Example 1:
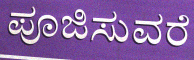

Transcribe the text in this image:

ಪೂಜಿಸುವರೆ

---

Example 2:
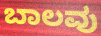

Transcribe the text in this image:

ಬಾಲವು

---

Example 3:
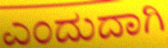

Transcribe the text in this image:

ಎಂದುದಾಗಿ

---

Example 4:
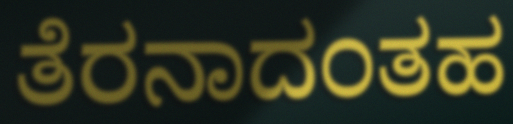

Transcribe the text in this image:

ತೆರನಾದಂತಹ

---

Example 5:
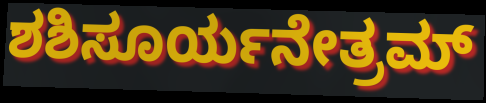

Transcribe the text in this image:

ಶಶಿಸೂರ್ಯನೇತ್ರಮ್